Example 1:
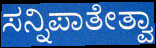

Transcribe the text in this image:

ಸನ್ನಿಪಾತೇತ್ವಾ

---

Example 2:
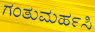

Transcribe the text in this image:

ಗಂತುಮರ್ಹಸಿ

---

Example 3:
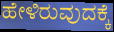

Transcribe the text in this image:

ಹೇಳಿರುವುದಕ್ಕೆ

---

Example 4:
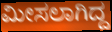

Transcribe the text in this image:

ಮೀಸಲಾಗಿದ್ದ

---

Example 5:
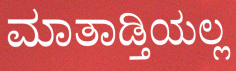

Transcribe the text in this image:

ಮಾತಾಡ್ತಿಯಲ್ಲ